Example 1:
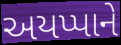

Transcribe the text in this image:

અયપ્પાને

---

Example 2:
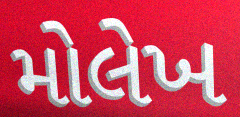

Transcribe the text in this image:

મોલેખ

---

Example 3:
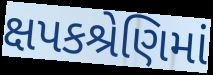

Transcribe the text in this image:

ક્ષપકશ્રેણિમાં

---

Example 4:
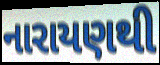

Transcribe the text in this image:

નારાયણથી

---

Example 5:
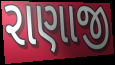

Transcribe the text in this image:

રાણાજી